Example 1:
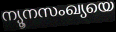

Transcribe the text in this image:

ന്യൂനസംഖ്യയെ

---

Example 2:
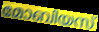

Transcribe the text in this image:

മോബിയസ്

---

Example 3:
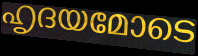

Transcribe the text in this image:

ഹൃദയമോടെ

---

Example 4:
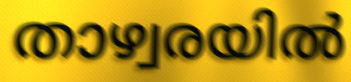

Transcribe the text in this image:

താഴ്വരയിൽ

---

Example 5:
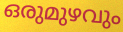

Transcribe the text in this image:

ഒരുമുഴവും